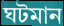
ঘটমান